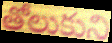
తోలుకుని